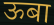
ऊबा